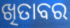
ଖିତାବର